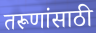
तरूणांसाठी